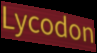
Lycodon